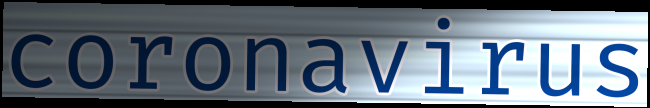
coronavirus